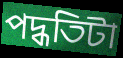
পদ্ধতিটা